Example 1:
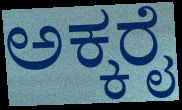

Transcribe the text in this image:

ಅಕ್ಕರೈ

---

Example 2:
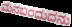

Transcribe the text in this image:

ಮನಬಂದುದನು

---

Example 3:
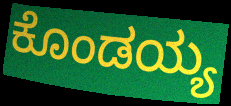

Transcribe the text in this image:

ಕೊಂಡಯ್ಯ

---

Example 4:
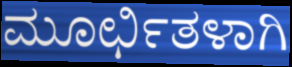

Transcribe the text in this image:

ಮೂರ್ಛಿತಳಾಗಿ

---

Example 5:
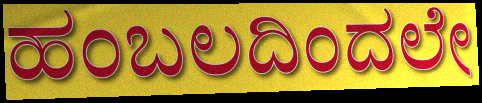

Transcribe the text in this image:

ಹಂಬಲದಿಂದಲೇ